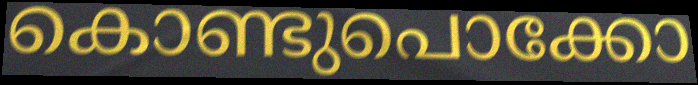
കൊണ്ടുപൊക്കോ